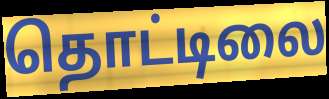
தொட்டிலை